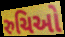
રુચિઓ